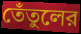
তেঁতুলের